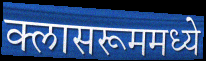
क्लासरूममध्ये